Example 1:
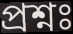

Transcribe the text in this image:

প্ৰশ্নঃ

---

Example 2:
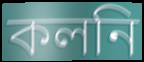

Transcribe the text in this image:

কলনি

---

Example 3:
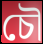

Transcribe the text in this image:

চৌ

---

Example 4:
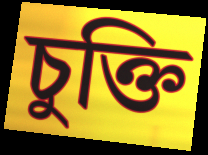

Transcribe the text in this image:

চুক্তি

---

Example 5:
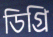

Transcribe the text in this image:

ডিগ্ৰি